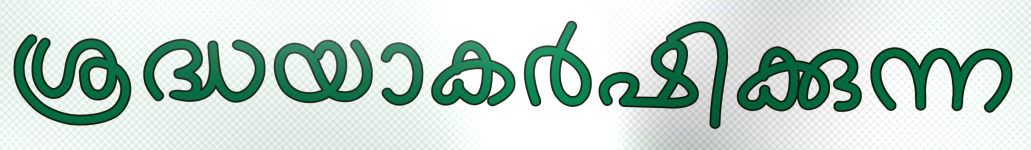
ശ്രദ്ധയാകർഷിക്കുന്ന